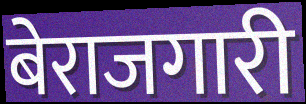
बेराजगारी